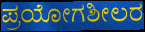
ಪ್ರಯೋಗಶೀಲರ